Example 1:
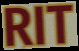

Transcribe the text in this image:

RIT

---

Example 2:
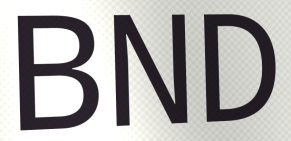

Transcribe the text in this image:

BND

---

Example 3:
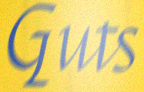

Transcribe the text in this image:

Guts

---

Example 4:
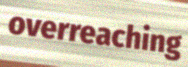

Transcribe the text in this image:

overreaching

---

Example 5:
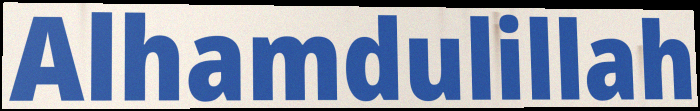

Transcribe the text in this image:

Alhamdulillah